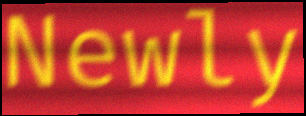
Newly